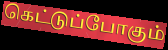
கெட்டுப்போகும்